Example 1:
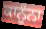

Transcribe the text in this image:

ਕਾਨੂੰਨਾ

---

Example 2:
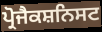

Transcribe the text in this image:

ਪ੍ਰੋਜੈਕਸ਼ਨਿਸਟ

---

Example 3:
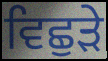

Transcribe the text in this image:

ਵਿਛੁੜੇ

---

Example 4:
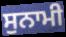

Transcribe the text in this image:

ਸੁਨਾਮੀ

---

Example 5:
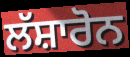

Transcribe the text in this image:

ਲੱਸ਼ਾਰੋਨ